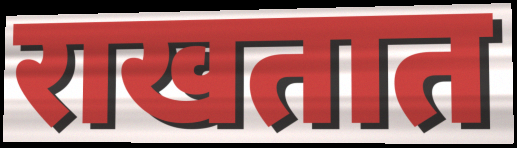
राखतात